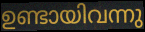
ഉണ്ടായിവന്നു